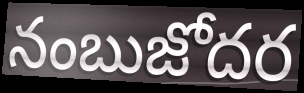
నంబుజోదర